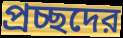
প্রচ্ছদের